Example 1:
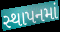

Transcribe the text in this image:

સ્થાપનમાં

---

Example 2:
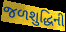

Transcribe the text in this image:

જળશુદ્ધિની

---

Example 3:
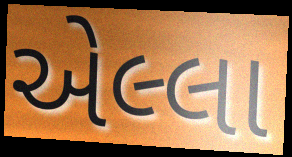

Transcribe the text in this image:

એલ્લા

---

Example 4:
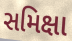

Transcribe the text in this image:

સમિક્ષા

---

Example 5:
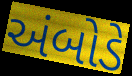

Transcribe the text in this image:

અંબોડે